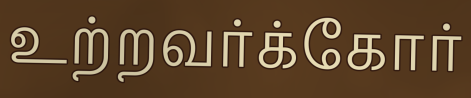
உற்றவர்க்கோர்